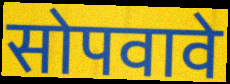
सोपवावे